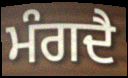
ਮੰਗਦੈ